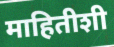
माहितीशी